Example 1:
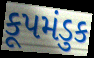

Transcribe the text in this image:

કૂપમંડુક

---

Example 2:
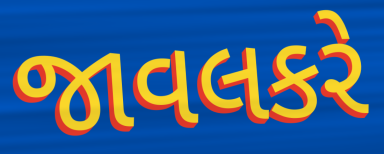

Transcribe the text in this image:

જાવલકરે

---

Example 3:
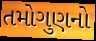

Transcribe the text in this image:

તમોગુણનો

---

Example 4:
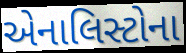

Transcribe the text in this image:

એનાલિસ્ટોના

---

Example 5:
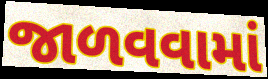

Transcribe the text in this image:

જાળવવામાં